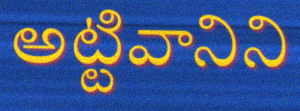
అట్టివానిని